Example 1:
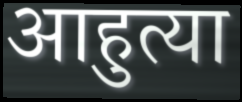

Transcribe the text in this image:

आहुत्या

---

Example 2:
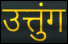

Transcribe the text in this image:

उत्तुंग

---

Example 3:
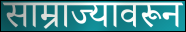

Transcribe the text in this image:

साम्राज्यावरून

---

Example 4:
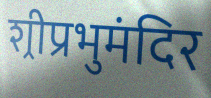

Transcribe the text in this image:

श्रीप्रभुमंदिर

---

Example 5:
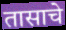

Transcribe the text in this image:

तासाचे